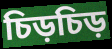
চিড়চিড়